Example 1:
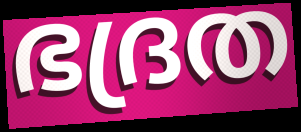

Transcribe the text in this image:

ഭദ്രത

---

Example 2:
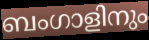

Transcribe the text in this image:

ബംഗാളിനും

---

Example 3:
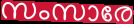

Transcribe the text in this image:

സംസാരേ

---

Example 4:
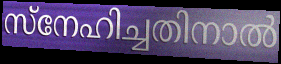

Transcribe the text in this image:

സ്നേഹിച്ചതിനാൽ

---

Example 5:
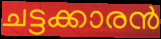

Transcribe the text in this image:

ചട്ടക്കാരൻ